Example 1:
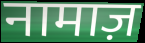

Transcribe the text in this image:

नामाज़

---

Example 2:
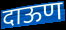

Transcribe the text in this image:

दाऊण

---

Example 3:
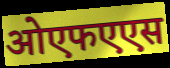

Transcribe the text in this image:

ओएफएएस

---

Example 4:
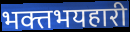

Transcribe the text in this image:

भक्तभयहारी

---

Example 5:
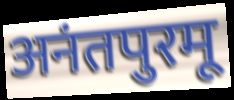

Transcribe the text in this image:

अनंतपुरमू